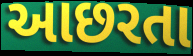
આછરતા